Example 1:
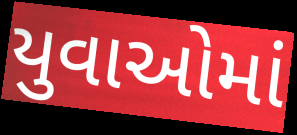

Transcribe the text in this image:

યુવાઓમાં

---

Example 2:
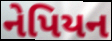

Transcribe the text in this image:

નેપિયન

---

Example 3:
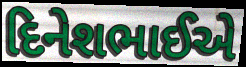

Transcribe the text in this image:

દિનેશભાઈએ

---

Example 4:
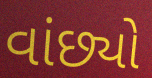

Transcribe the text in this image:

વાંછ્યો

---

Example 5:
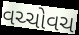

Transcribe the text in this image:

વચ્ચોવચ